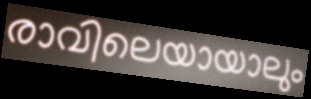
രാവിലെയായാലും